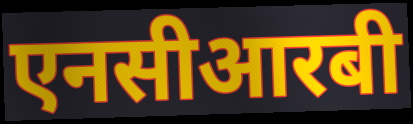
एनसीआरबी